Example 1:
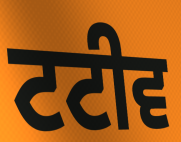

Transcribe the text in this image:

ਟਟੀਵ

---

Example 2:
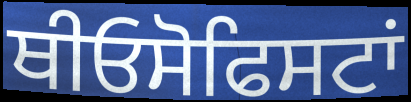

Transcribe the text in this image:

ਥੀਓਸੋਫਿਸਟਾਂ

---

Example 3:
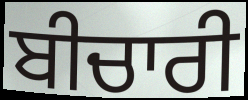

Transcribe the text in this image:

ਬੀਚਾਰੀ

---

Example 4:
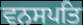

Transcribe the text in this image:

ਵਨਸਪਤਿ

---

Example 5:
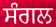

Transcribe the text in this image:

ਸੰਗਲ